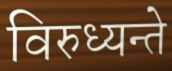
विरुध्यन्ते